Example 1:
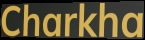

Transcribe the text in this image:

Charkha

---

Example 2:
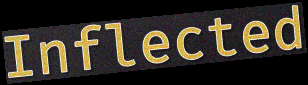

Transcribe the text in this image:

Inflected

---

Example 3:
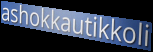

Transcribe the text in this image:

ashokkautikkoli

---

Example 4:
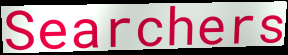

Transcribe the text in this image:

Searchers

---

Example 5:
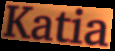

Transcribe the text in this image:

Katia